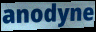
anodyne